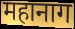
महानाग